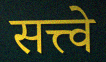
सत्त्वे